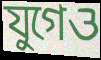
যুগেও